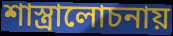
শাস্ত্রালোচনায়